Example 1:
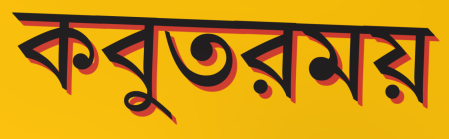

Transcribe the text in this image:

কবুতরময়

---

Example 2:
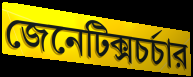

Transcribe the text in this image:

জেনেটিক্সচর্চার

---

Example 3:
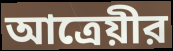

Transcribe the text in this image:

আত্রেয়ীর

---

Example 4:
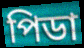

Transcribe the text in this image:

পিডা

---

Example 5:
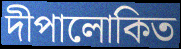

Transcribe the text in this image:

দীপালোকিত